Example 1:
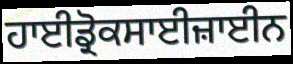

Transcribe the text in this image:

ਹਾਈਡ੍ਰੋਕਸਾਈਜ਼ਾਈਨ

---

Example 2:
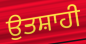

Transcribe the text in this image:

ਉਤਸ਼ਾਹੀ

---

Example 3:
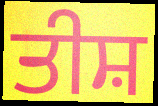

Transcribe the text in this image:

ਤੀਸ਼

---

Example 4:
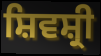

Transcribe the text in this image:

ਸ਼ਿਵਸ਼੍ਰੀ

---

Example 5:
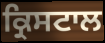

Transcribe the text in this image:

ਕ੍ਰਿਸਟਾਲ